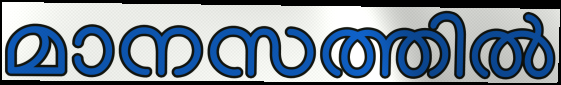
മാനസത്തിൽ